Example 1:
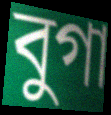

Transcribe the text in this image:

বুগা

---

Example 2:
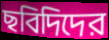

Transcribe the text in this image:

ছবিদিদের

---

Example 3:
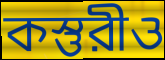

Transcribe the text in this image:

কস্তুরীও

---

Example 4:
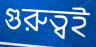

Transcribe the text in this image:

গুরুত্বই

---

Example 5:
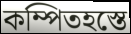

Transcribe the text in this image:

কম্পিতহস্তে